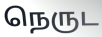
நெருட